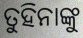
ତୁହିନାଙ୍କୁ